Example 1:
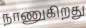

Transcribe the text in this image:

நாணுகிறது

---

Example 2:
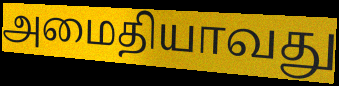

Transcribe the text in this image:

அமைதியாவது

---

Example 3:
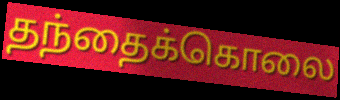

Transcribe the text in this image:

தந்தைக்கொலை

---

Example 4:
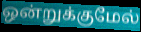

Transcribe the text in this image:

ஒன்றுக்குமேல்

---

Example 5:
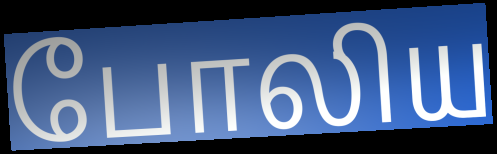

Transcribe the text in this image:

போலிய